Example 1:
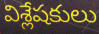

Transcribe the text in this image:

విశ్లేషకులు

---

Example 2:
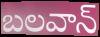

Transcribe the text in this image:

బలవాన్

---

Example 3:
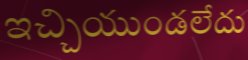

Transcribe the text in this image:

ఇచ్చియుండలేదు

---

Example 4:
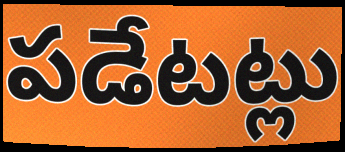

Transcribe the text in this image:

పడేటట్లు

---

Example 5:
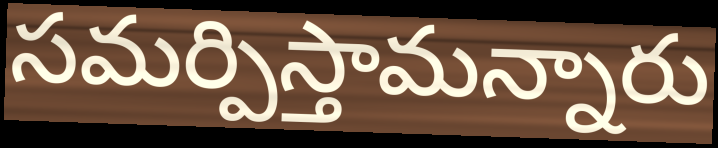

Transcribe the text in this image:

సమర్పిస్తామన్నారు